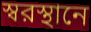
স্বরস্থানে